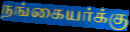
நங்கையர்க்கு